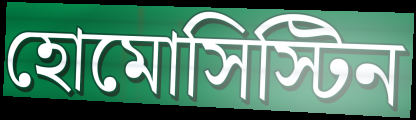
হোমোসিস্টিন